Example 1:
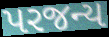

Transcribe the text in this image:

પરજન્ય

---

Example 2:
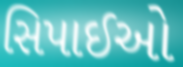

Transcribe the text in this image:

સિપાઈઓ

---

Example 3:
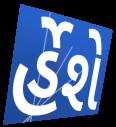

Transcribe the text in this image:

ર્હેશે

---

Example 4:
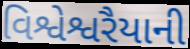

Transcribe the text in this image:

વિશ્વેશ્વરૈયાની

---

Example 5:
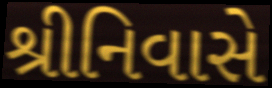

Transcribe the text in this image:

શ્રીનિવાસે